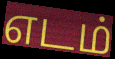
எடம்